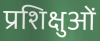
प्रशिक्षुओं